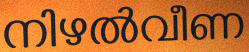
നിഴൽവീണ